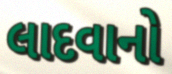
લાદવાનો